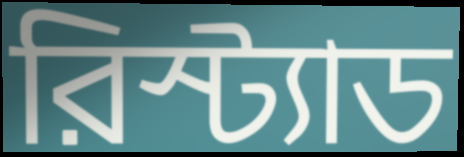
রিস্ট্যাড